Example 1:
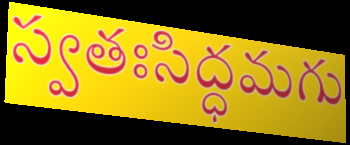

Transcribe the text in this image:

స్వతఃసిద్ధమగు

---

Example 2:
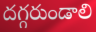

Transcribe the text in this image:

దగ్గరుండాలి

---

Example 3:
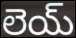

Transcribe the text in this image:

లెయ్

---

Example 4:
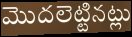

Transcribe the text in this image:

మొదలెట్టినట్లు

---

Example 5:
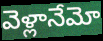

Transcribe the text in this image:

వెళ్లానేమో